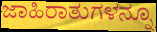
ಜಾಹಿರಾತುಗಳನ್ನೂ